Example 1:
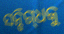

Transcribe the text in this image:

ସନ୍ଦିଗ୍‌ଧକୁ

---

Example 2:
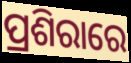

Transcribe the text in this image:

ପ୍ରଶିରାରେ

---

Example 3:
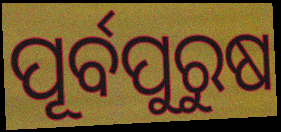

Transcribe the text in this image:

ପୂର୍ବପୁରୁଷ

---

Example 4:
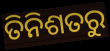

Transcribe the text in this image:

ତିନିଶତରୁ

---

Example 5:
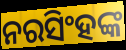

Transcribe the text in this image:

ନରସିଂହଙ୍କ